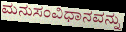
ಮನುಸಂವಿಧಾನವನ್ನು